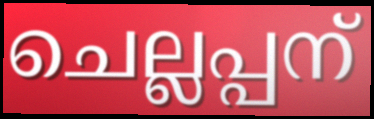
ചെല്ലപ്പന്